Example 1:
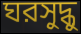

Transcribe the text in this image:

ঘরসুদ্ধু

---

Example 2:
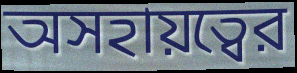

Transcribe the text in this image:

অসহায়ত্বের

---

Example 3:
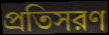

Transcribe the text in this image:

প্রতিসরণ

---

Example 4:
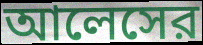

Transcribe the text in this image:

আলেসের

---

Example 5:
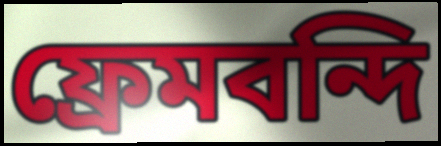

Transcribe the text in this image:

ফ্রেমবন্দি